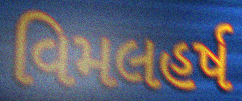
વિમલહર્ષ